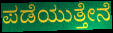
ಪಡೆಯುತ್ತೇನೆ